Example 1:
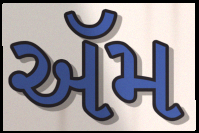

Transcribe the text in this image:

ઍમ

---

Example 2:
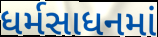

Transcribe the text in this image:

ધર્મસાધનમાં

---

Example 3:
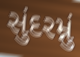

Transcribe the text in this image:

સુંદરમ્નું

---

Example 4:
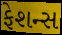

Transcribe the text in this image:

ફેશન્સ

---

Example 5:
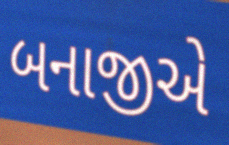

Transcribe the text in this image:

બનાજીએ